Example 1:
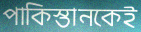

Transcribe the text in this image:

পাকিস্তানকেই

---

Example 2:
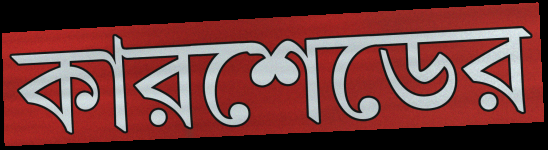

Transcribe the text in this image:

কারশেডের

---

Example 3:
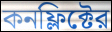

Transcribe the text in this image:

কনফ্লিক্টের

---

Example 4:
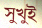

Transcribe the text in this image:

সুখুই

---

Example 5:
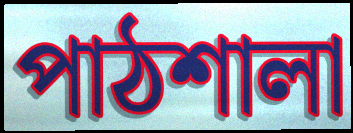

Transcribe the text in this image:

পাঠশালা